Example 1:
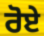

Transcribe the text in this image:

ਰੋਏ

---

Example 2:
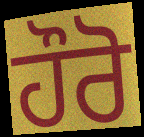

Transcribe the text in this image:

ਹੌਰੋ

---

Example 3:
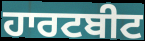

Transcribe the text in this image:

ਹਾਰਟਬੀਟ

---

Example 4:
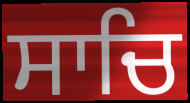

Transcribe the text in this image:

ਸਾਚਿ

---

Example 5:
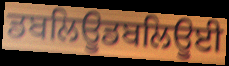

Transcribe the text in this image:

ਡਬਲਿਊਡਬਲਿਊਈ